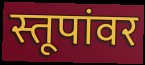
स्तूपांवर